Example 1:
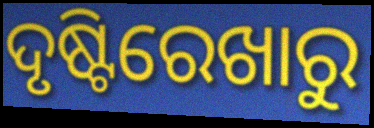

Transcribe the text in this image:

ଦୃଷ୍ଟିରେଖାରୁ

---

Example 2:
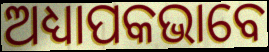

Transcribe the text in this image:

ଅଧ୍ୟାପକଭାବେ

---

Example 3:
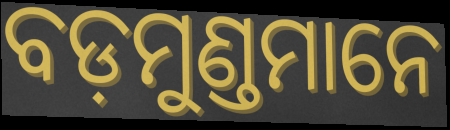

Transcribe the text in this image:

ବଡ଼ମୁଣ୍ଡମାନେ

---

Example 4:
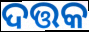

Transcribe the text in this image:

ଦତ୍ତକ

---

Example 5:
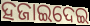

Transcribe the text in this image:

ହଜାଇଦେଇ